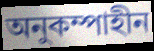
অনুকম্পাহীন